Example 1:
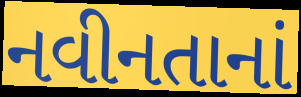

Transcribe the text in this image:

નવીનતાનાં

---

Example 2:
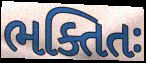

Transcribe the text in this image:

ભક્તિતઃ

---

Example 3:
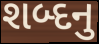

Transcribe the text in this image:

શબ્દનુ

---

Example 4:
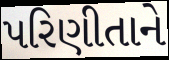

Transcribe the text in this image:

પરિણીતાને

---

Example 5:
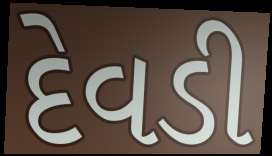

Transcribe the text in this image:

દેવડી